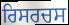
ਰਿਸਰਚਸ